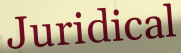
Juridical